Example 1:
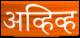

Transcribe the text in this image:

अव्हिव्ह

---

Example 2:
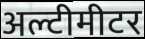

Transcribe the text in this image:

अल्टीमीटर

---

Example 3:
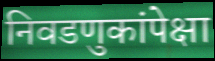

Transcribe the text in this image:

निवडणुकांपेक्षा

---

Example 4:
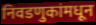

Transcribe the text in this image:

निवडणुकांमधून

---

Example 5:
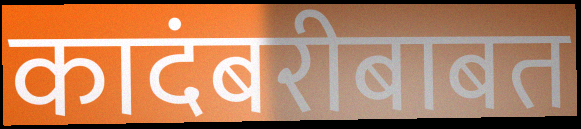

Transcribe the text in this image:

कादंबरीबाबत